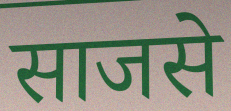
साजसे